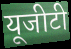
यूजीटी